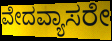
ವೇದವ್ಯಾಸರೇ